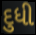
દુધી